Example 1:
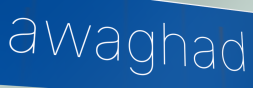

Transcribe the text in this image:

awaghad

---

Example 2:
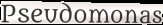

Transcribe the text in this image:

Pseudomonas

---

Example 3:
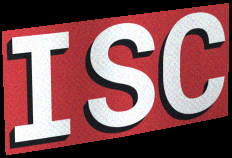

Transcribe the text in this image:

ISC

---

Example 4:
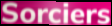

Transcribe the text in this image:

Sorciers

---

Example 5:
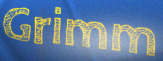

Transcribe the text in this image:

Grimm